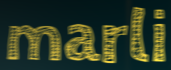
marli